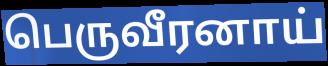
பெருவீரனாய்